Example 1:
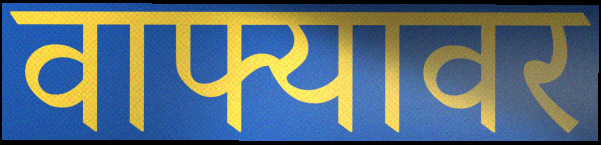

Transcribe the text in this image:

वाफ्यावर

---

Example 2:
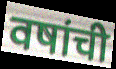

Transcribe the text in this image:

वषांची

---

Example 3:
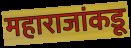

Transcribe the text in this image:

महाराजांकडू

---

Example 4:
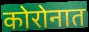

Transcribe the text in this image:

कोरोनात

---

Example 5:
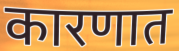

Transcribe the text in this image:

कारणात